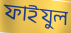
ফাইযুল